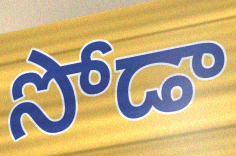
సోడా